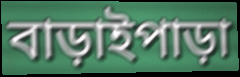
বাড়াইপাড়া